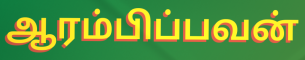
ஆரம்பிப்பவன்